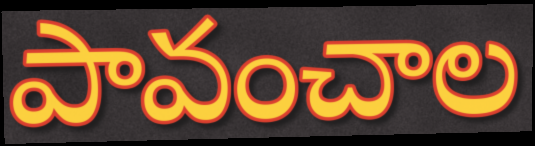
పావంచాల